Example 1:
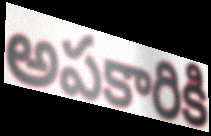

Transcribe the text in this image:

అపకారికి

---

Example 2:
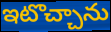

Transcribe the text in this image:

ఇటొచ్చాను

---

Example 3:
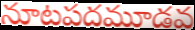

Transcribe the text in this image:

నూటపదమూడవ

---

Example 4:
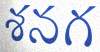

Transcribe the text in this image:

శనగ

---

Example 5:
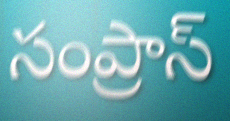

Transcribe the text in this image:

సంప్రాస్